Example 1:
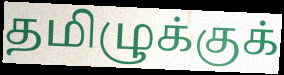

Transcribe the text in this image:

தமிழுக்குக்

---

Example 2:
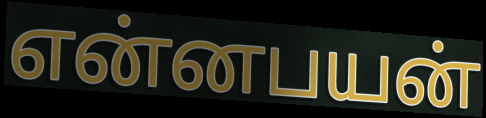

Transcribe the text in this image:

என்னபயன்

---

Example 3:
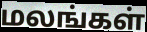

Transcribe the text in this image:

மலங்கள்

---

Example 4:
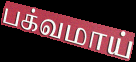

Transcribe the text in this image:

பக்வமாய்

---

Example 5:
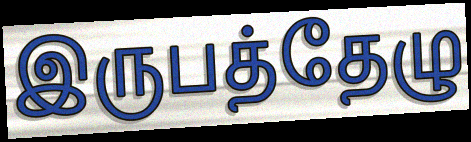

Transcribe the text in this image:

இருபத்தேழு